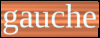
gauche